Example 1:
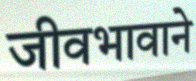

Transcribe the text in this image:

जीवभावाने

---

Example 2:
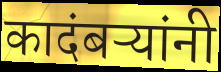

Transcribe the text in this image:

कादंबऱ्यांनी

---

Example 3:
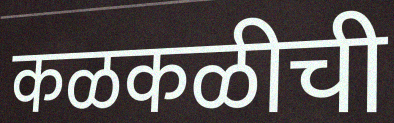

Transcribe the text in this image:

कळकळीची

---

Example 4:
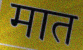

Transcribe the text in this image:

मात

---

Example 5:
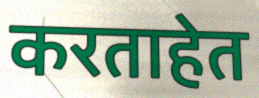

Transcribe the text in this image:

करताहेत